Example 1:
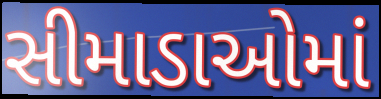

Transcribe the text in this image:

સીમાડાઓમાં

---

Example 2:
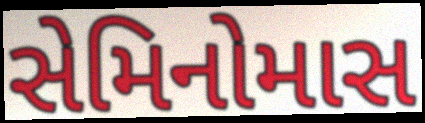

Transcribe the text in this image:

સેમિનોમાસ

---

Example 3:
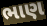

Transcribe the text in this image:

ભાણ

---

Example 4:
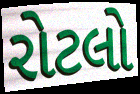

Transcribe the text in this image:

રોટલો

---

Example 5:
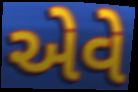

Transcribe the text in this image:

એવે